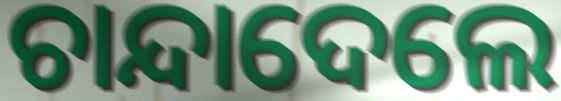
ଚାନ୍ଦାଦେଲେ